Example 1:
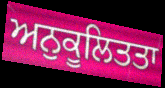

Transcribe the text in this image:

ਅਨੁਕੂਲਿਤਤਾ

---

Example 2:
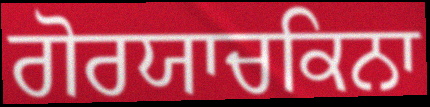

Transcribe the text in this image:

ਗੋਰਯਾਚਕਿਨਾ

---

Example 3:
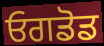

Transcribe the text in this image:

ਓਗਡੋਡ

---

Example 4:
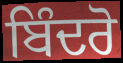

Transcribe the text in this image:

ਬਿੰਦਰੋ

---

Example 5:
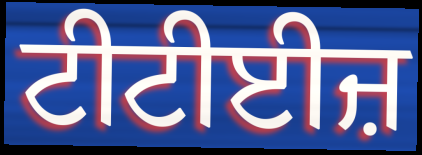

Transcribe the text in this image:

ਟੀਟੀਈਜ਼